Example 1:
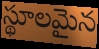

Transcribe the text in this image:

స్థూలమైన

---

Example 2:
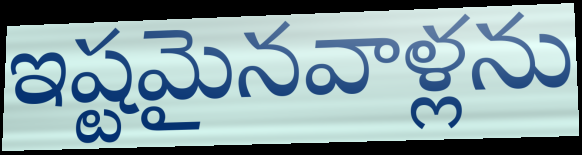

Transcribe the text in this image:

ఇష్టమైనవాళ్లను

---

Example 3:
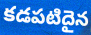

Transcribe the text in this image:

కడపటిదైన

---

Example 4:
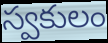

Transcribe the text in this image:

స్వకులం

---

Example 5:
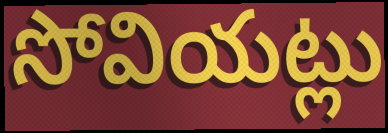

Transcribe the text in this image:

సోవియట్లు